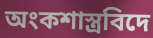
অংকশাস্ত্ৰবিদে